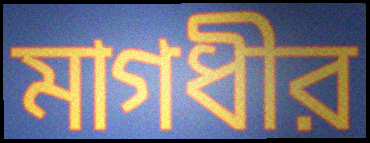
মাগধীর